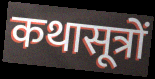
कथासूत्रों